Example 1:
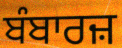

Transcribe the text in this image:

ਬੰਬਾਰਜ਼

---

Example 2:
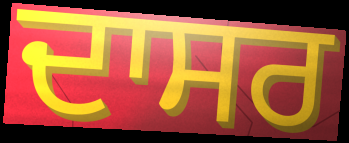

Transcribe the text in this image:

ਦਾਸਰ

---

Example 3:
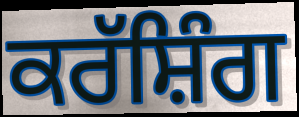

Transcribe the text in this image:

ਕਰੱਸ਼ਿੰਗ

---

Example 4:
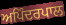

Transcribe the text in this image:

ਅਪਿੰਦਰਪਾਲ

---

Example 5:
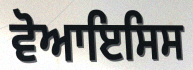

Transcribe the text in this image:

ਵੋਆਇਸਿਸ